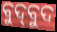
ବୁଦ୍‍ବୁଦ